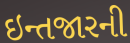
ઇન્તજારની